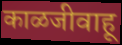
काळजीवाहू